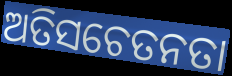
ଅତିସଚେତନତା